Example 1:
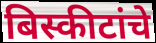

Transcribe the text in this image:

बिस्कीटांचे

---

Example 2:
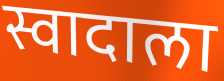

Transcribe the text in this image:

स्वादाला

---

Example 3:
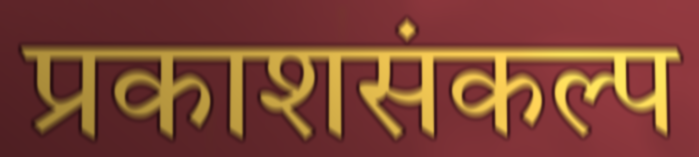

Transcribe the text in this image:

प्रकाशसंकल्प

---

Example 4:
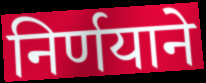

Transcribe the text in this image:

निर्णयाने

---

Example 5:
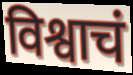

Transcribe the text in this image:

विश्वाचं